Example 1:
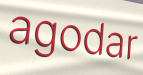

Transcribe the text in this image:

agodar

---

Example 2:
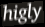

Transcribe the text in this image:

higly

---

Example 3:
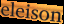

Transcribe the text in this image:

eleison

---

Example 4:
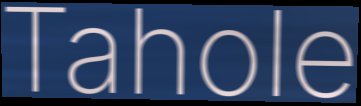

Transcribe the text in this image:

Tahole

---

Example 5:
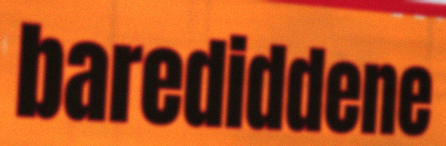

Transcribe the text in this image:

barediddene